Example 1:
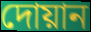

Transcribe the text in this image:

দোয়ান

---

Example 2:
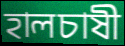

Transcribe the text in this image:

হালচাষী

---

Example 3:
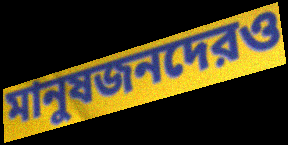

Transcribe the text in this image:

মানুষজনদেরও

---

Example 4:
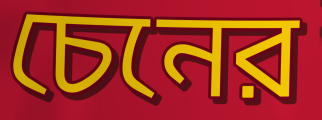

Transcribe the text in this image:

চেনের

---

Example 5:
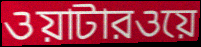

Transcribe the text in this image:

ওয়াটারওয়ে